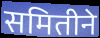
समितीने